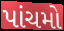
પાંચમો